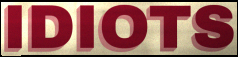
IDIOTS